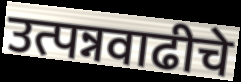
उत्पन्नवाढीचे